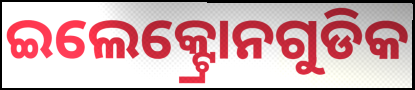
ଇଲେକ୍ଟ୍ରୋନଗୁଡିକ